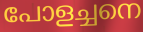
പോളച്ചനെ